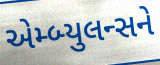
એમ્બ્યુલન્સને